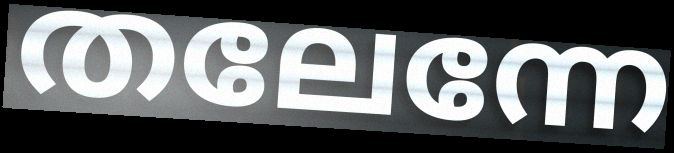
തലേന്നേ